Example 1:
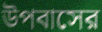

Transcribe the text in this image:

উপবাসের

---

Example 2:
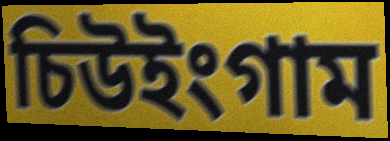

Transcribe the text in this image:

চিউইংগাম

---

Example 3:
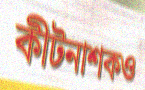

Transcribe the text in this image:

কীটনাশকও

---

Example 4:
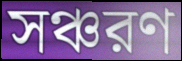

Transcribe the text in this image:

সঞ্চরণ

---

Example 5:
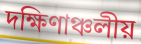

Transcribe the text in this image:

দক্ষিণাঞ্চলীয়